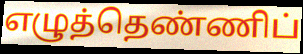
எழுத்தெண்ணிப்